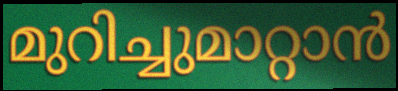
മുറിച്ചുമാറ്റാൻ